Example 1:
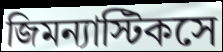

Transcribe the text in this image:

জিমন্যাস্টিকসে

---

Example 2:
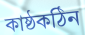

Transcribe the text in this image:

কাষ্ঠকঠিন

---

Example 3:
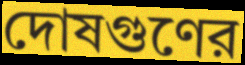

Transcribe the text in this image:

দোষগুণের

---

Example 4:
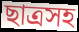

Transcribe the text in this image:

ছাত্রসহ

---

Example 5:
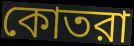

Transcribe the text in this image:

কোতরা